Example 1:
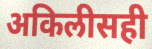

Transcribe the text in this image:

अकिलीसही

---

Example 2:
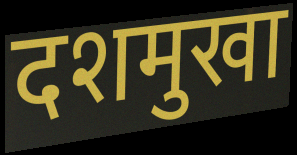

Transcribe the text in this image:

दशमुखा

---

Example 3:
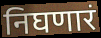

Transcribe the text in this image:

निघणारं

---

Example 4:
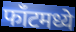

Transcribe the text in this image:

फाँटमध्ये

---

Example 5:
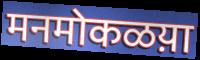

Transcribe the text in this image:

मनमोकळय़ा